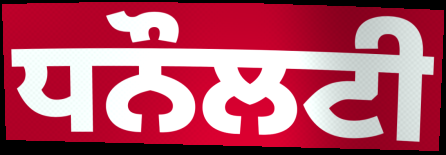
ਧਨੌਲਟੀ